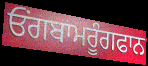
ਓਂਗਬਾਮਰੂੰਗਫਾਨ